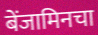
बेंजामिनचा